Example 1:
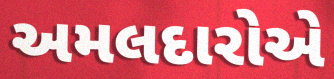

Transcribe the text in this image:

અમલદારોએ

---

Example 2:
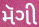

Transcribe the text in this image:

મૅગી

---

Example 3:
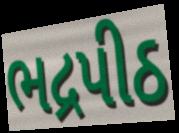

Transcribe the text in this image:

ભદ્રપીઠ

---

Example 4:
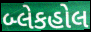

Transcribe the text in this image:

બ્લેકહોલ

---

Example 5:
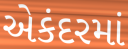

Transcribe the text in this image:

એકંદરમાં